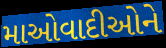
માઓવાદીઓને